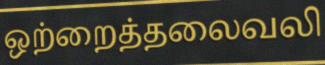
ஒற்றைத்தலைவலி